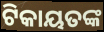
ଟିକାୟତଙ୍କ